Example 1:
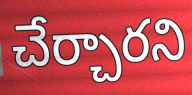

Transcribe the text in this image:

చేర్చారని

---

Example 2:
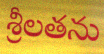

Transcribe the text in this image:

శ్రీలతను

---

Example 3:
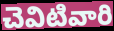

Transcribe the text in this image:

చెవిటివారి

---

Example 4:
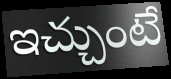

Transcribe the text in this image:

ఇచ్చుంటే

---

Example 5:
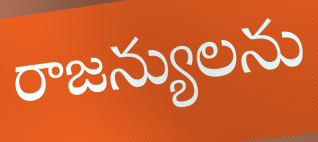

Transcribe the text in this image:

రాజన్యులను